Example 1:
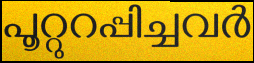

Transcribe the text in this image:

പൂറ്റുറപ്പിച്ചവർ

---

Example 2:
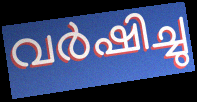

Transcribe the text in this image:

വർഷിച്ചു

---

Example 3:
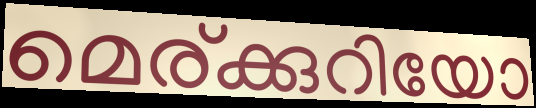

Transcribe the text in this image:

മെര്ക്കുറിയോ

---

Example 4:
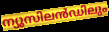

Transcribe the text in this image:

ന്യൂസിലൻഡിലും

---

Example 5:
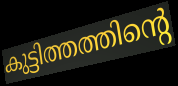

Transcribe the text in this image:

കുട്ടിത്തത്തിന്റെ